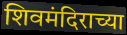
शिवमंदिराच्या